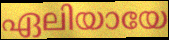
ഏലിയായേ